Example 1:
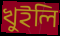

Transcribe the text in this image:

খুইলি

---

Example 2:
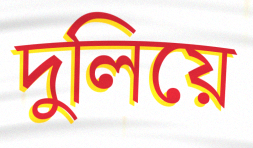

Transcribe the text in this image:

দুলিয়ে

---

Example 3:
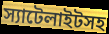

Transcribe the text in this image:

স্যাটেলাইটসহ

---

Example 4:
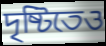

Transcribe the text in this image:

দৃষ্টিতেও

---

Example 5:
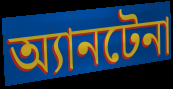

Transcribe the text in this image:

অ্যানটেনা